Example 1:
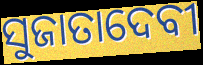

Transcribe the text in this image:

ସୁଜାତାଦେବୀ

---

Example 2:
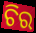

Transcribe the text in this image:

ଚିର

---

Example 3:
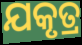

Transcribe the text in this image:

ଯକୃତ୍ର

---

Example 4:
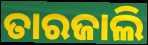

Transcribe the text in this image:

ତାରଜାଲି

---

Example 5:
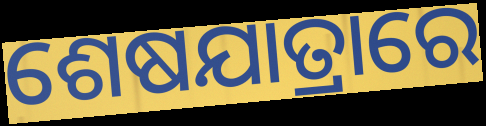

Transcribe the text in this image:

ଶେଷଯାତ୍ରାରେ